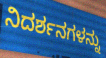
ನಿದರ್ಶನಗಳನ್ನು